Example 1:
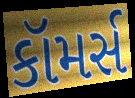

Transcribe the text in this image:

કૉમર્સ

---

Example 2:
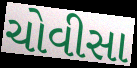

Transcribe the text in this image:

ચોવીસા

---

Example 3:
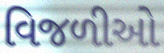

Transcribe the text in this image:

વિજળીઓ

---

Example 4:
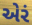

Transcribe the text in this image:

એરં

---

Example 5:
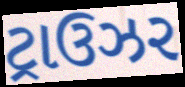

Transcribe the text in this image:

ટ્રાઉઝર